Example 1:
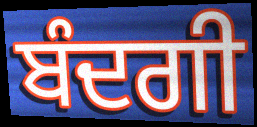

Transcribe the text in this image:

ਬੰਦਗੀ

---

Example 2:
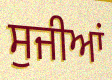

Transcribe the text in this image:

ਸੁਜੀਆਂ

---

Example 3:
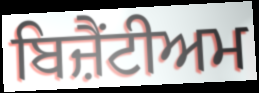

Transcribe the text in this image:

ਬਿਜ਼ੈਂਟੀਅਮ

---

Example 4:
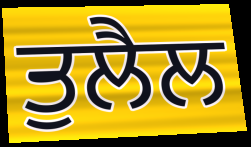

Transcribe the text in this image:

ਤੁਲੈਲ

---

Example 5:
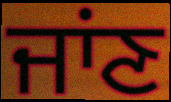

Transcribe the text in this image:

ਜਾਂਣ